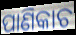
ପାଣିକାଚ